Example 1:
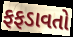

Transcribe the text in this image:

ફફડાવતો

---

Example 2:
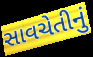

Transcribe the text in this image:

સાવચેતીનું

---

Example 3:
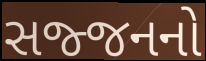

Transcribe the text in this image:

સજ્જનનો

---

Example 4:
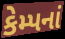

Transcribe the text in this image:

કેમ્પનાં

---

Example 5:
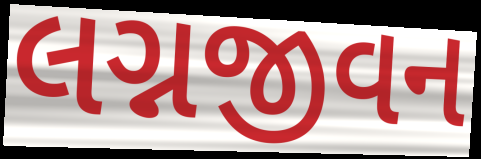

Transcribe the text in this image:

લગ્નજીવન